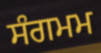
ਸੰਗਮਮ